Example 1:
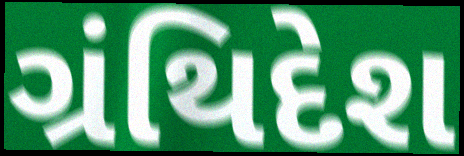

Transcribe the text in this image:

ગ્રંથિદેશ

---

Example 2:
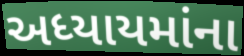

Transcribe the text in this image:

અધ્યાયમાંના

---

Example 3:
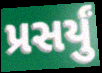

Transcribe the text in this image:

પ્રસર્યું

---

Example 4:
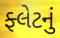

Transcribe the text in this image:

ફ્લેટનું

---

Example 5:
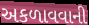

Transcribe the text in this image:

અકળાવવાની